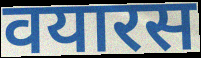
वयारस